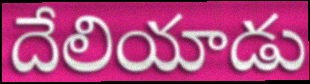
దేలియాడు